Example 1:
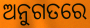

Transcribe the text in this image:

ଅନୁଗତରେ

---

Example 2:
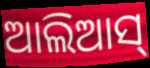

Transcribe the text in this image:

ଆଲିଆସ୍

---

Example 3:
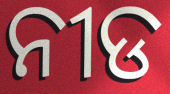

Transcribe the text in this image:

ନୀଡ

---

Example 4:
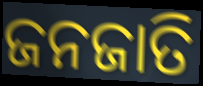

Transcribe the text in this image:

ଜନଜାତି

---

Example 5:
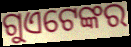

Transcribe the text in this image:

ଗୁଏଟେଙ୍କର